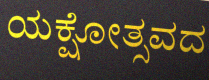
ಯಕ್ಷೋತ್ಸವದ